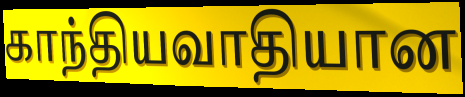
காந்தியவாதியான